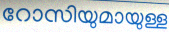
റോസിയുമായുള്ള